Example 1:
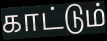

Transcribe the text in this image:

காட்டும்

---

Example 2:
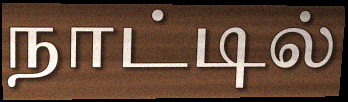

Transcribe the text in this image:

நாட்டில்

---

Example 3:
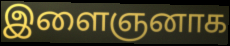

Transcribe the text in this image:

இளைஞனாக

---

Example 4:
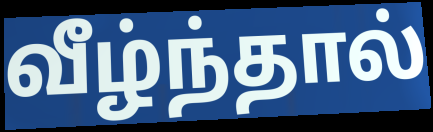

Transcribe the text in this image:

வீழ்ந்தால்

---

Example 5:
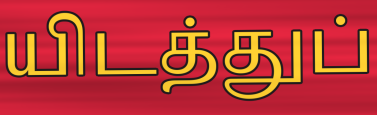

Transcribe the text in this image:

யிடத்துப்